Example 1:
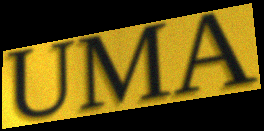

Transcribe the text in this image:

UMA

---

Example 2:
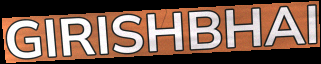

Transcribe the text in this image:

GIRISHBHAI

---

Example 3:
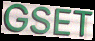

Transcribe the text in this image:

GSET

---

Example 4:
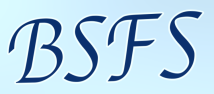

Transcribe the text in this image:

BSFS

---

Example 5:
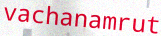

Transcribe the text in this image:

vachanamrut